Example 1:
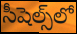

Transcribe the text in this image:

సీషెల్స్‌లో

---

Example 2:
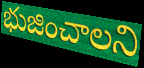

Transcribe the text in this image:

భుజించాలని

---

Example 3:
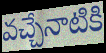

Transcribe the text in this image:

వచ్చేనాటికి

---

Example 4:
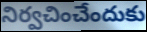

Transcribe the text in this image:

నిర్వచించేందుకు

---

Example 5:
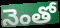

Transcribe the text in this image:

నెంతో